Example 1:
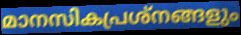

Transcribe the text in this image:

മാനസികപ്രശ്നങ്ങളും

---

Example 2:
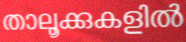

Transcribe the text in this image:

താലൂക്കുകളിൽ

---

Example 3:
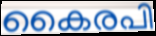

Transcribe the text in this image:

കൈരപി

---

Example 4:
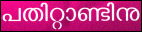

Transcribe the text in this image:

പതിറ്റാണ്ടിനു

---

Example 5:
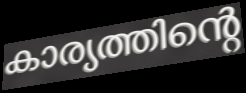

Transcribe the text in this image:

കാര്യത്തിന്റെ